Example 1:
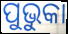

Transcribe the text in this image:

ପୁଭୁକା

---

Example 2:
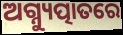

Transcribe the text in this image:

ଅଗ୍ନ୍ୟୁତ୍ପାତରେ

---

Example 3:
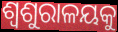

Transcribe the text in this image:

ଶ୍ୱଶୁରାଳୟକୁ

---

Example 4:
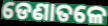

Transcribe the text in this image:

ଡେଣାତଳେ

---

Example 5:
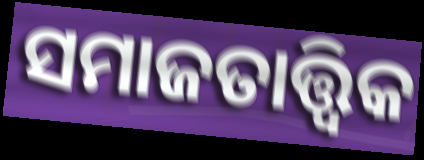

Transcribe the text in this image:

ସମାଜତାତ୍ତ୍ୱିକ